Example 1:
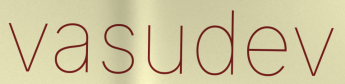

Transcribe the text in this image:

vasudev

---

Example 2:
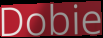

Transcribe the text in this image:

Dobie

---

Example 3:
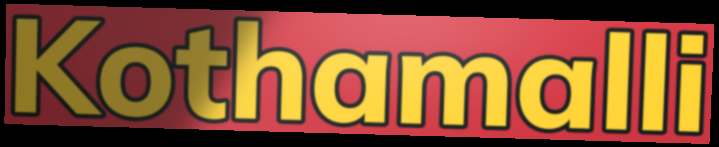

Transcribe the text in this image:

Kothamalli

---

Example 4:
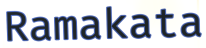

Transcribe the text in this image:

Ramakata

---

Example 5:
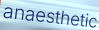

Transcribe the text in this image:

anaesthetic